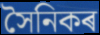
সৈনিকৰ